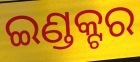
ଇଣ୍ଡକ୍ଟର